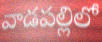
వాడపల్లిలో